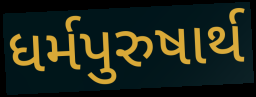
ધર્મપુરુષાર્થ